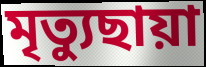
মৃত্যুছায়া